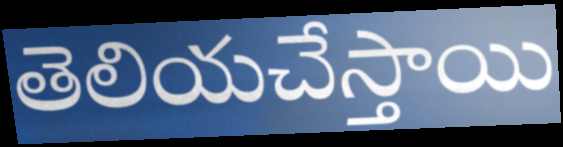
తెలియచేస్తాయి